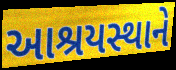
આશ્રયસ્થાને